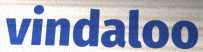
vindaloo